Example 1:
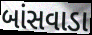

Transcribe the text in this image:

બાંસવાડા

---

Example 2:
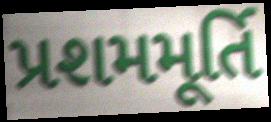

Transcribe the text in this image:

પ્રશમમૂર્તિ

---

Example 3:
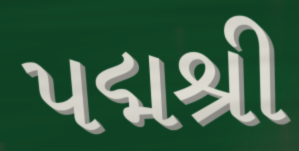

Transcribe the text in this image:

પદ્મશ્રી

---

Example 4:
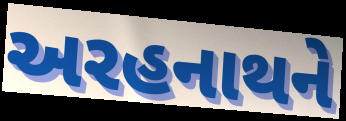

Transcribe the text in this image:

અરહનાથને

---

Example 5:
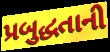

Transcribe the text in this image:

પ્રબુદ્ધતાની